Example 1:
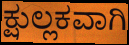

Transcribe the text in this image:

ಕ್ಷುಲ್ಲಕವಾಗಿ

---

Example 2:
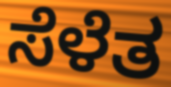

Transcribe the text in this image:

ಸೆಳೆತ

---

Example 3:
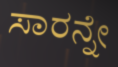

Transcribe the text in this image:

ಸಾರನ್ನೇ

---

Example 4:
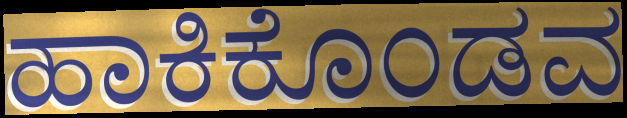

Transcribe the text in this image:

ಹಾಕಿಕೊಂಡವ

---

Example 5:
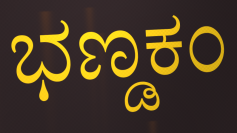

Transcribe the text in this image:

ಭಣ್ಡಕಂ